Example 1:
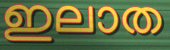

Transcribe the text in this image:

ഇലാത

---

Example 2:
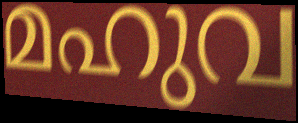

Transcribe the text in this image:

മഹുവ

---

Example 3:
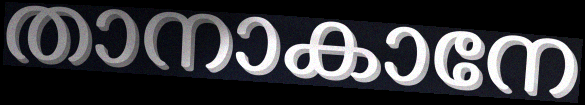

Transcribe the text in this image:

താനാകാനേ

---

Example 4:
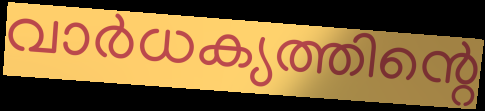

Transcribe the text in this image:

വാർധക്യത്തിന്റെ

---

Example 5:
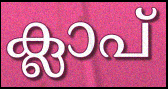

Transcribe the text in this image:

ക്ലാപ്